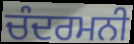
ਚੰਦਰਮਨੀ